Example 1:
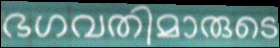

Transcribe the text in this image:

ഭഗവതിമാരുടെ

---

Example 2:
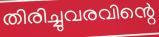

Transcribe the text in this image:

തിരിച്ചുവരവിന്റെ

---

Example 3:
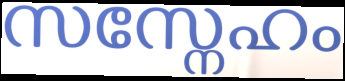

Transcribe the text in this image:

സസ്നേഹം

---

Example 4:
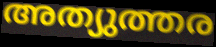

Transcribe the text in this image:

അത്യുത്തര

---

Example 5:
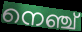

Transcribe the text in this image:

നെഞ്ച്